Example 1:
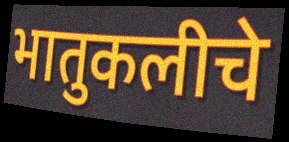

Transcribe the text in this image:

भातुकलीचे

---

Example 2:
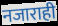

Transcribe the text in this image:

नजाराही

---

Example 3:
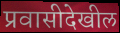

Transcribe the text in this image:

प्रवासीदेखील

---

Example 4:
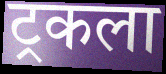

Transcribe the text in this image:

ट्रकला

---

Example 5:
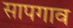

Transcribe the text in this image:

सापगाव